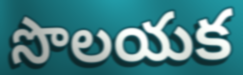
సొలయక